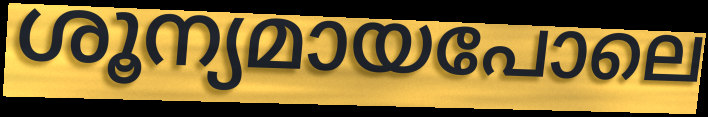
ശൂന്യമായപോലെ